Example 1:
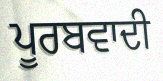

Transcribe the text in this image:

ਪੂਰਬਵਾਦੀ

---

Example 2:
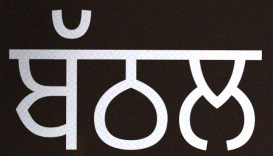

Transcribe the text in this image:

ਬੱਠਲ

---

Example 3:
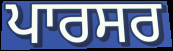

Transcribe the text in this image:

ਪਾਰਸਰ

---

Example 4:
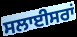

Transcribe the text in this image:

ਸਲਾਈਸਰਾਂ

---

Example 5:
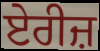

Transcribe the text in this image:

ਏਰੀਜ਼